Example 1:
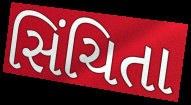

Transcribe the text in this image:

સિંચિતા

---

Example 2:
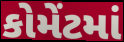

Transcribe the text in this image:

કોમેંટમાં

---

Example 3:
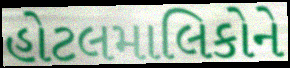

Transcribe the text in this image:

હોટલમાલિકોને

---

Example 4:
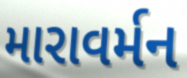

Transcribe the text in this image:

મારાવર્મન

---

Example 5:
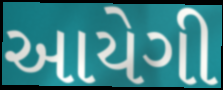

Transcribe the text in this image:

આયેગી